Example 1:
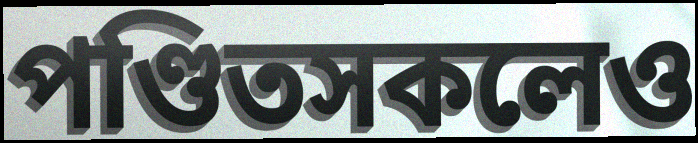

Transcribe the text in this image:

পণ্ডিতসকলেও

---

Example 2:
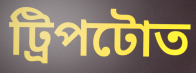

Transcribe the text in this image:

ট্ৰিপটোত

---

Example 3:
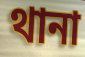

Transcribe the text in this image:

থানা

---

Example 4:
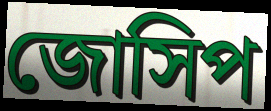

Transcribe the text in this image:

জোসিপ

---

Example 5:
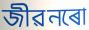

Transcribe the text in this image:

জীৱনৰো